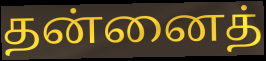
தன்னைத்